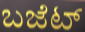
ಬಜೆಟ್